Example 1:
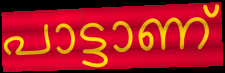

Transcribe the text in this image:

പാട്ടാണ്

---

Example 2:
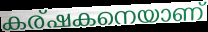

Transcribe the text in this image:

കര്ഷകനെയാണ്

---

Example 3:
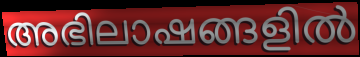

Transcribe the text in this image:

അഭിലാഷങ്ങളിൽ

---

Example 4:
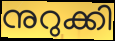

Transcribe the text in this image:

നുറുക്കി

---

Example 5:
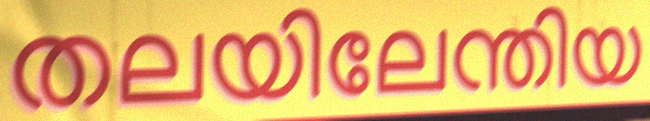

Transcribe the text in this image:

തലയിലേന്തിയ